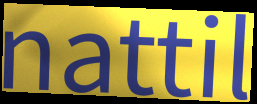
nattil